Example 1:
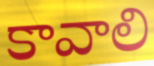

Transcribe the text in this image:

కావాలి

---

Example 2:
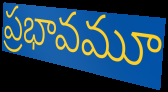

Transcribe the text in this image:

ప్రభావమూ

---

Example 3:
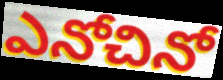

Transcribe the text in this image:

ఎనోచినో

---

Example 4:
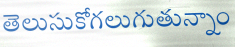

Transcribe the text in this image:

తెలుసుకోగలుగుతున్నాం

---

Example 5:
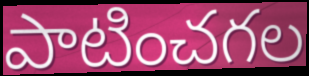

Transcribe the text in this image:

పాటించగల